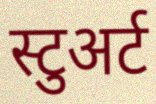
स्टुअर्ट